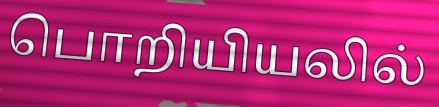
பொறியியலில்